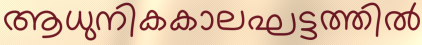
ആധുനികകാലഘട്ടത്തിൽ